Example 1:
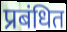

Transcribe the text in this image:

प्रबंधित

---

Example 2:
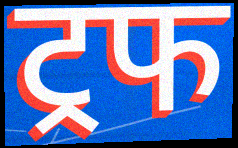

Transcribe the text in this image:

ट्रफ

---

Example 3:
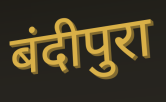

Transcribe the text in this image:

बंदीपुरा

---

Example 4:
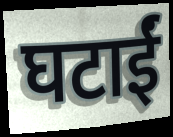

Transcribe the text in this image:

घटाईं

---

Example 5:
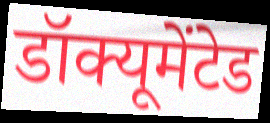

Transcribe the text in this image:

डॉक्यूमेंटेड